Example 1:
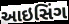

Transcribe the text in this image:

આઇસિંગ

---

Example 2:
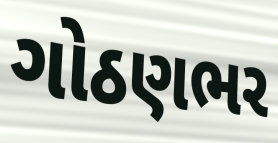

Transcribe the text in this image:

ગોઠણભર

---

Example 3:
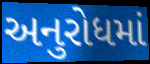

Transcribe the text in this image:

અનુરોધમાં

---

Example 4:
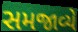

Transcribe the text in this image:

સમજાવ્યે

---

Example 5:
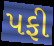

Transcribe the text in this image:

પફી